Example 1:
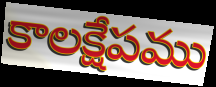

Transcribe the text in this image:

కాలక్షేపము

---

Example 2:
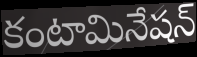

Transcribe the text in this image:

కంటామినేషన్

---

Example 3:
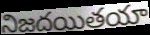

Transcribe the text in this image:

నిజదయితయా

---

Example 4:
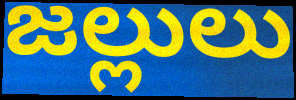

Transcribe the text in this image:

జల్లులు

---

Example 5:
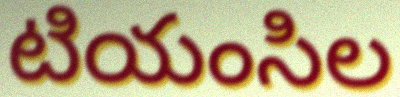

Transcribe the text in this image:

టియంసిల